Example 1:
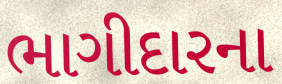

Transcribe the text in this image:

ભાગીદારના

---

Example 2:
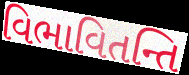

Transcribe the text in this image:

વિભાવિતન્તિ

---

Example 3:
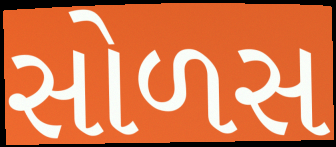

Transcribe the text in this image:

સોળસ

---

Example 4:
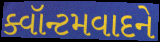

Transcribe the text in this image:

ક્વૉન્ટમવાદને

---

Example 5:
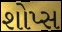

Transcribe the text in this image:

શોપ્સ